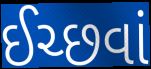
ઈચ્છવાં